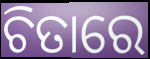
ଚିତାରେ